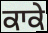
ਕਾਕੇ